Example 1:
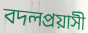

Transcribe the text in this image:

বদলপ্রয়াসী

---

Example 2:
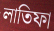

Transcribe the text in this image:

লাতিফা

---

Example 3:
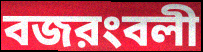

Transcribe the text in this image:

বজরংবলী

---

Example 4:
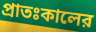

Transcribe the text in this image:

প্রাতঃকালের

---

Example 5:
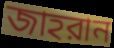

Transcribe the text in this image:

জাহরান